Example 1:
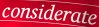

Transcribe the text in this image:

considerate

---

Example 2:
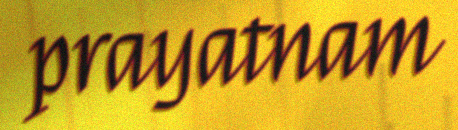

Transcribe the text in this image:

prayatnam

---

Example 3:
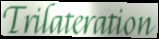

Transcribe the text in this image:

Trilateration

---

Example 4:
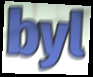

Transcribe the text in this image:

byl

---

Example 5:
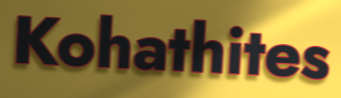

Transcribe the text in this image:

Kohathites